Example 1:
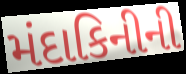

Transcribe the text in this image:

મંદાકિનીની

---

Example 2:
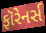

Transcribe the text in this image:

ફૉરેનર્સ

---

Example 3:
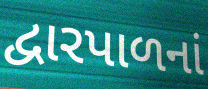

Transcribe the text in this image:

દ્વારપાળનાં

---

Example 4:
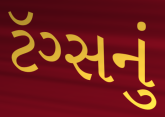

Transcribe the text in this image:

ટૅગ્સનું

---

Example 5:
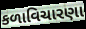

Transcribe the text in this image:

કળાવિચારણા